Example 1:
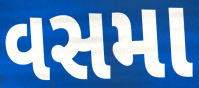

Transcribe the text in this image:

વસમા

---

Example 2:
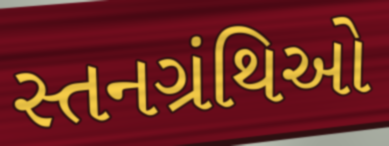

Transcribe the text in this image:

સ્તનગ્રંથિઓ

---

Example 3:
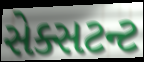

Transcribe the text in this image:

સેક્સટન્ટ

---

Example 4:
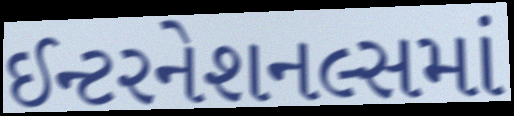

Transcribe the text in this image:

ઈન્ટરનેશનલ્સમાં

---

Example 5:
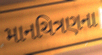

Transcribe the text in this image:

માનચિત્રણના